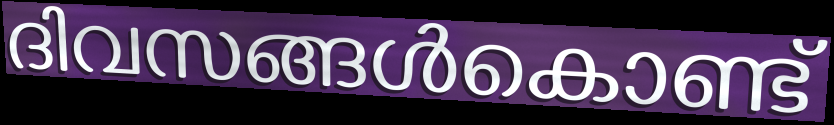
ദിവസങ്ങൾകൊണ്ട്